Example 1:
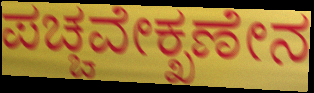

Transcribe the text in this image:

ಪಚ್ಚವೇಕ್ಖಣೇನ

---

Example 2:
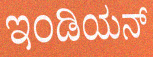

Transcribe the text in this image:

ಇಂಡಿಯನ್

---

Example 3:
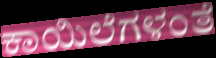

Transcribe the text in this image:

ಕಾಯಿಲೆಗಳಂತೆ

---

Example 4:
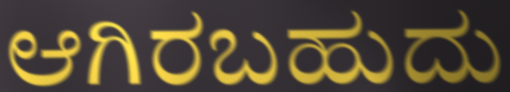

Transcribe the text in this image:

ಆಗಿರಬಹುದು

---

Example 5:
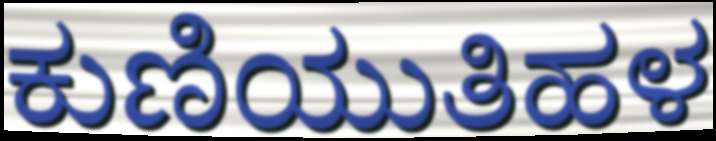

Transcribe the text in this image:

ಕುಣಿಯುತಿಹಳ